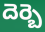
దెర్బె